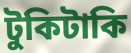
টুকিটাকি